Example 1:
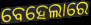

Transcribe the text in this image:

ବେହେଲାରେ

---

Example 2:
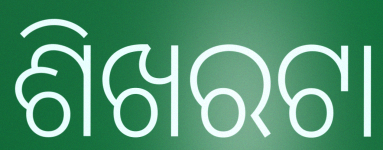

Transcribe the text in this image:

ଶିଖରଟା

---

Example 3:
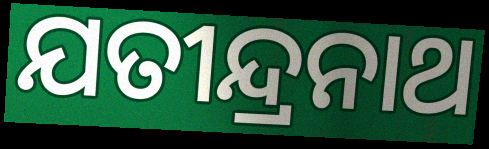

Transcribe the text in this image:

ଯତୀନ୍ଦ୍ରନାଥ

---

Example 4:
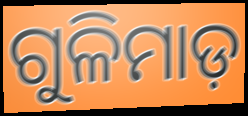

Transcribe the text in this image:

ଗୁଳିମାଡ଼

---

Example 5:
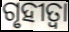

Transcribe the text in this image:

ଗୃହୀତ୍ଵା